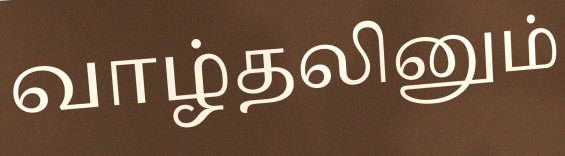
வாழ்தலினும்